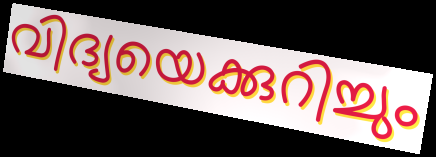
വിദ്യയെക്കുറിച്ചും